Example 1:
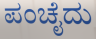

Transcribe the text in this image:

ಪಂಚೈದು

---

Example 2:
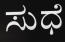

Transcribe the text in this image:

ಸುಧೆ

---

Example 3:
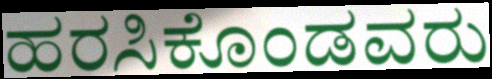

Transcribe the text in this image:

ಹರಸಿಕೊಂಡವರು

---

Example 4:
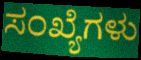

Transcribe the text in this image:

ಸಂಖ್ಯೆಗಳು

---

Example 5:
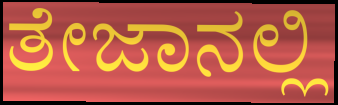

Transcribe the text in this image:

ತೇಜಾನಲ್ಲಿ